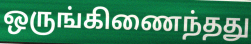
ஒருங்கிணைந்தது